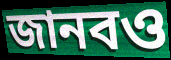
জানবও